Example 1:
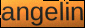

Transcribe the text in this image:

angelin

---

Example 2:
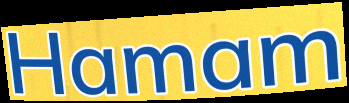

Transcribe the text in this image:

Hamam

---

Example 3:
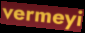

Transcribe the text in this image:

vermeyi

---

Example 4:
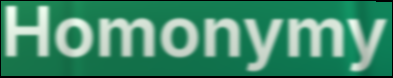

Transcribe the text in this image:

Homonymy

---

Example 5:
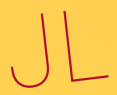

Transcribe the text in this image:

JL